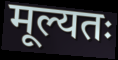
मूल्यतः